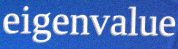
eigenvalue